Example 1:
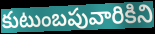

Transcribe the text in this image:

కుటుంబపువారికిని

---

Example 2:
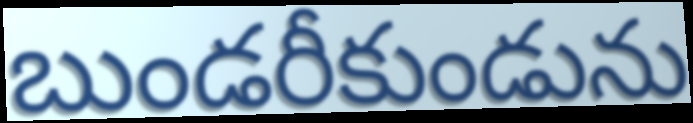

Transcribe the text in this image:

బుండరీకుండును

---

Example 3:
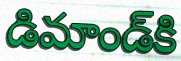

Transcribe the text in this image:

డిమాండ్‌కి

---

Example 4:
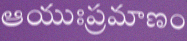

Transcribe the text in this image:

ఆయుఃప్రమాణం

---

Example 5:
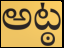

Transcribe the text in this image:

అట్ఠ